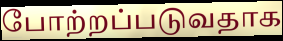
போற்றப்படுவதாக